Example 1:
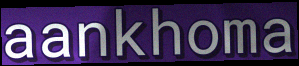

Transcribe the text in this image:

aankhoma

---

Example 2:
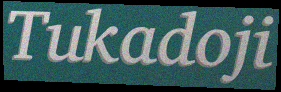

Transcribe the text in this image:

Tukadoji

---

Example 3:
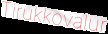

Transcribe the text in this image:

Tirukkovalur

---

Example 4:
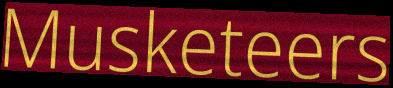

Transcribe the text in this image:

Musketeers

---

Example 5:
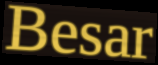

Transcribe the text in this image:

Besar